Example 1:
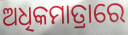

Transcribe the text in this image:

ଅଧିକମାତ୍ରାରେ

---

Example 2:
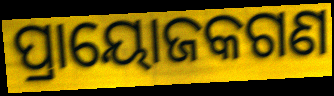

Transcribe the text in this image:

ପ୍ରାୟୋଜକଗଣ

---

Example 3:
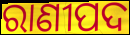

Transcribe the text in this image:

ରାଣୀପଦ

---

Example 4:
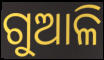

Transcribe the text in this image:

ଗୁଆଳି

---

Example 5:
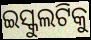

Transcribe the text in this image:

ଇସ୍କୁଲଟିକୁ